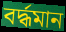
বর্দ্ধমান